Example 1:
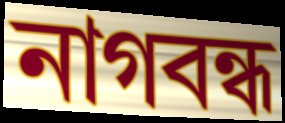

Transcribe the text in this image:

নাগবন্ধ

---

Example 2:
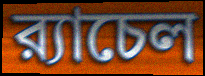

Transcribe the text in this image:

র‍্যাচেল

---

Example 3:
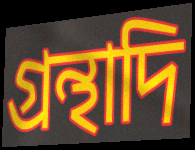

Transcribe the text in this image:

গ্রন্থাদি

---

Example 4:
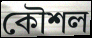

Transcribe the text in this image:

কৌশল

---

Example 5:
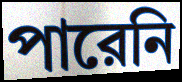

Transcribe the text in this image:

পারেনি